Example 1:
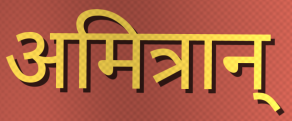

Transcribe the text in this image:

अमित्रान्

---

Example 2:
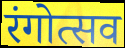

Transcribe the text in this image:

रंगोत्सव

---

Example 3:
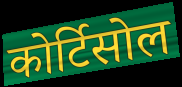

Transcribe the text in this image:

कोर्टिसोल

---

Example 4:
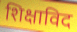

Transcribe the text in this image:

शिक्षाविद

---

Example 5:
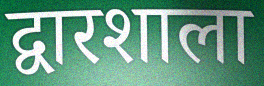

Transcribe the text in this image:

द्वारशाला